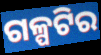
ଗଳ୍ପଟିର